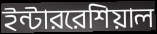
ইন্টাররেশিয়াল